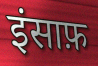
इंसाफ़